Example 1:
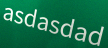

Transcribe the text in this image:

asdasdad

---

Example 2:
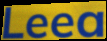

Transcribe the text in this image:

Leea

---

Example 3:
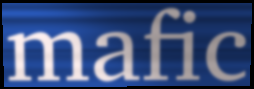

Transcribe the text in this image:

mafic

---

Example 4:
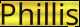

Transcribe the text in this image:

Phillis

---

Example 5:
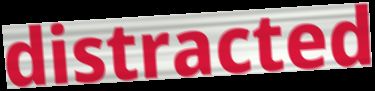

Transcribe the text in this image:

distracted